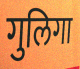
गुलिगा